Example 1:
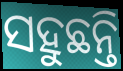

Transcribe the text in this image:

ସହୁଛନ୍ତି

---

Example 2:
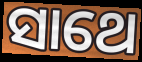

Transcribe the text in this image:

ସାଥେ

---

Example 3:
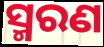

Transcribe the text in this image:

ସ୍ମରଣ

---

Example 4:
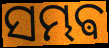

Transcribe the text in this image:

ସମ୍ଭଵ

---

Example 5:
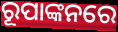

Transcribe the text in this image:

ରୂପାଙ୍କନରେ